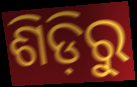
ଶିଡ଼ିରୁ